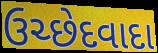
ઉચ્છેદવાદા